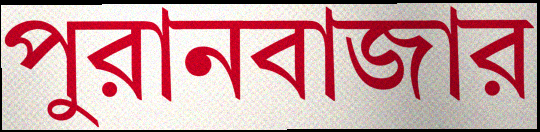
পুরানবাজার